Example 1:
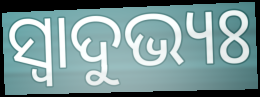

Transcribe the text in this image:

ସ୍ବାଦୁଭ୍ୟଃ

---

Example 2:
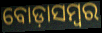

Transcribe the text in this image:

ବୋଡ଼ାସମ୍ବର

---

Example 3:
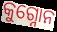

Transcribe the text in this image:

କୁଗ୍ନୋନ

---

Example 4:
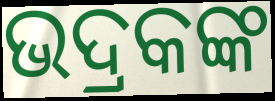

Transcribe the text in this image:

ଭଦ୍ରକଙ୍କ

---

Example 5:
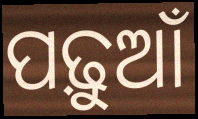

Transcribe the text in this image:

ପଢ଼ୁଆଁ